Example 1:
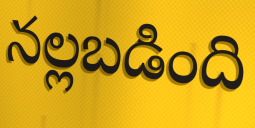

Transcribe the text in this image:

నల్లబడింది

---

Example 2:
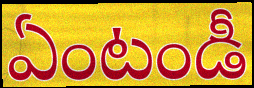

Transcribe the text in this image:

ఏంటండీ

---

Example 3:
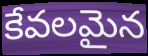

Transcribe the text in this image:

కేవలమైన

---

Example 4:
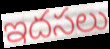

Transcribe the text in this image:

ఇదసలు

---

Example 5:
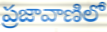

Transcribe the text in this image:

ప్రజావాణిలో